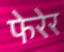
फेरेर